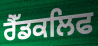
ਰੈੱਡਕਲਿਫ